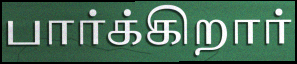
பார்க்கிறார்